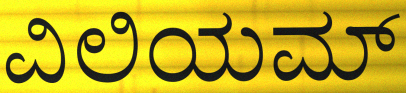
ವಿಲಿಯಮ್